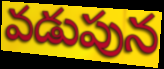
వడుపున